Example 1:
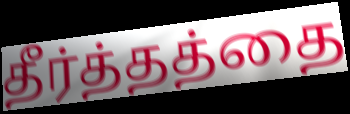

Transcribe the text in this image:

தீர்த்தத்தை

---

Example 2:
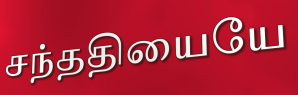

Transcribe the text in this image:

சந்ததியையே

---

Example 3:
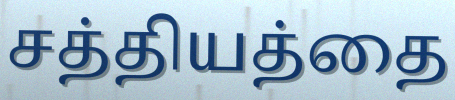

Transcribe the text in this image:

சத்தியத்தை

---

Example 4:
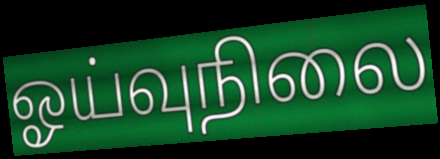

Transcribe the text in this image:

ஓய்வுநிலை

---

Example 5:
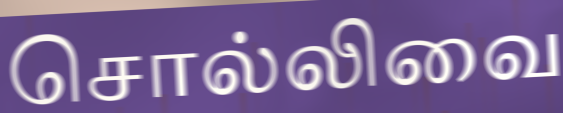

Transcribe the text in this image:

சொல்லிவை